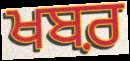
ਖਬ਼ਰ